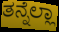
ತನ್ನೆಲ್ಲಾ